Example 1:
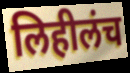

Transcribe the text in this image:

लिहीलंच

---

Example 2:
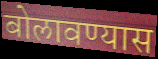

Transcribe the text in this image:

बोलावण्यास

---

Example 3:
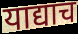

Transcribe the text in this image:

याद्याच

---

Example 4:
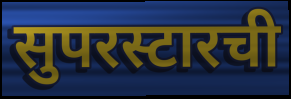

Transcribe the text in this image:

सुपरस्टारची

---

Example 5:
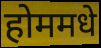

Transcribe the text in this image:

होममधे